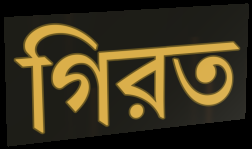
গিরত